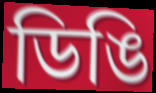
ডিঙি